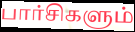
பார்சிகளும்